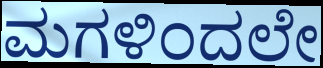
ಮಗಳಿಂದಲೇ